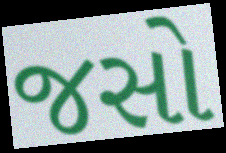
જસો